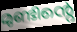
മുണ്ടിന്റെ